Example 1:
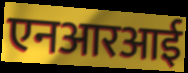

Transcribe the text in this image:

एनआरआई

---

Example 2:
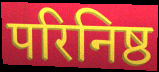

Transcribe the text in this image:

परिनिष्ठ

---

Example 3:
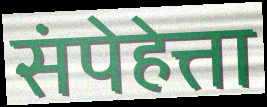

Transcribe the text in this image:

संपेहेत्ता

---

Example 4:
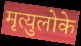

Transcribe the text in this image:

मृत्युलोके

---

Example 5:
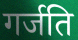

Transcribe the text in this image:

गर्जति